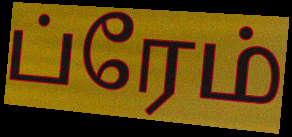
ப்ரேம்